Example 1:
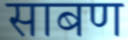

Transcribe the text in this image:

साबण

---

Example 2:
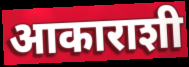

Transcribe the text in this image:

आकाराशी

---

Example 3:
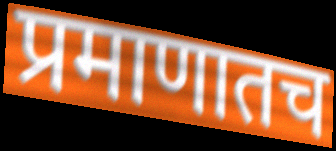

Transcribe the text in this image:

प्रमाणातच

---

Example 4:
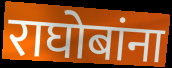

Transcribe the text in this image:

राघोबांना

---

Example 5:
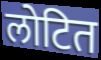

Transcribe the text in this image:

लोटित